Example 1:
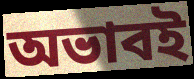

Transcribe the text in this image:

অভাবই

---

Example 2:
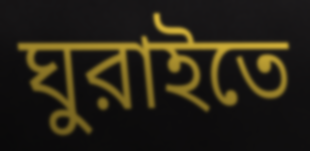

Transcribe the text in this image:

ঘুরাইতে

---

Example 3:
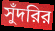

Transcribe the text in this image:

সুঁদরির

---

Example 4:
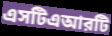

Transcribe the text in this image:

এসটিএআরটি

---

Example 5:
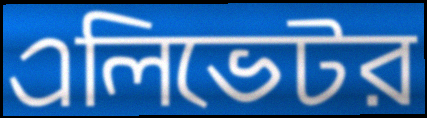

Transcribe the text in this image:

এলিভেটর